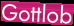
Gottlob